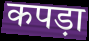
कपड़ा